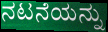
ನಟನೆಯನ್ನು